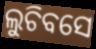
ଲୁଚିବସେ